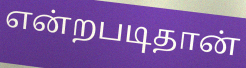
என்றபடிதான்